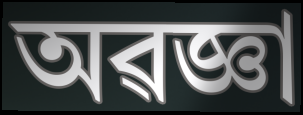
অৱজ্ঞা